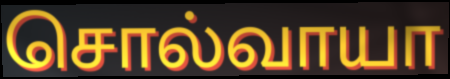
சொல்வாயா